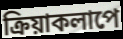
ক্রিয়াকলাপে